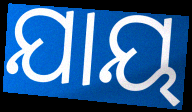
ଯାୟ